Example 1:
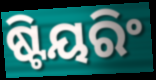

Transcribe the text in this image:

ଷ୍ଟିୟରିଂ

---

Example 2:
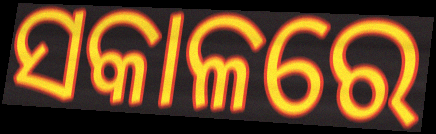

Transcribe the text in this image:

ସକାଳରେ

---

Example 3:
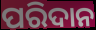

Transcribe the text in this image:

ପରିଦାନ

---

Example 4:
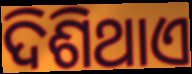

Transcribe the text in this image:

ଦିଶିଥାଏ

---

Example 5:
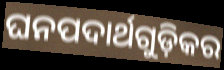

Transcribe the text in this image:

ଘନପଦାର୍ଥଗୁଡ଼ିକର